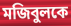
মজিবুলকে